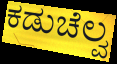
ಕಡುಚೆಲ್ವ